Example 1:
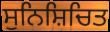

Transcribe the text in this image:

ਸੁਨਿਸ਼ਿਚਿਤ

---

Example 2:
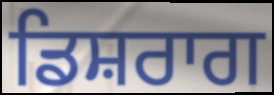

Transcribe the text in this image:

ਡਿਸ਼ਰਾਗ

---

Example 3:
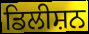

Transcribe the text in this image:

ਡਿਲੀਸ਼ਨ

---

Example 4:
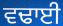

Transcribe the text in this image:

ਵਢਾਈ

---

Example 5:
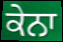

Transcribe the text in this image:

ਕੇਨਾ